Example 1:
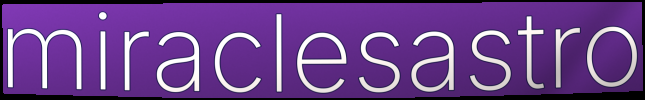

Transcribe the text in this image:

miraclesastro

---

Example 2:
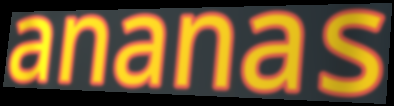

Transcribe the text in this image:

ananas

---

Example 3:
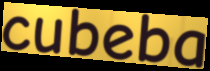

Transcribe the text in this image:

cubeba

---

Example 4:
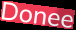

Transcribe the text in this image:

Donee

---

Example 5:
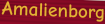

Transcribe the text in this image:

Amalienborg